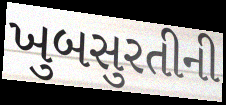
ખુબસુરતીની